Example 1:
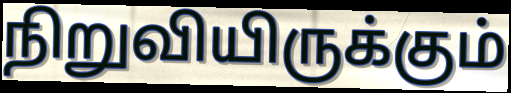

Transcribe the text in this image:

நிறுவியிருக்கும்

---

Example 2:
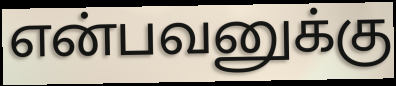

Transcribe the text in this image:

என்பவனுக்கு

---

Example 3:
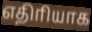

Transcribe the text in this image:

எதிரியாக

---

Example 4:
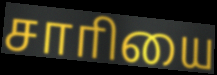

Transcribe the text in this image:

சாரியை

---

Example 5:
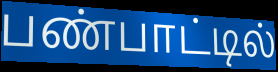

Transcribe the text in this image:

பண்பாட்டில்